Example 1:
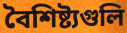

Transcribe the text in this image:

বৈশিষ্ট্যগুলি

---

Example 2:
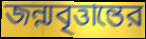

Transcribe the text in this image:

জন্মবৃত্তান্তের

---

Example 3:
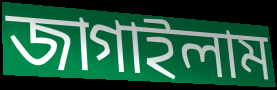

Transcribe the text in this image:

জাগাইলাম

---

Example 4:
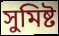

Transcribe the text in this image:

সুমিষ্ট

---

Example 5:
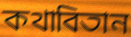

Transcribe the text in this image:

কথাবিতান